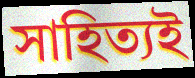
সাহিত্যই